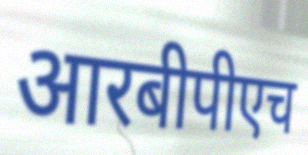
आरबीपीएच